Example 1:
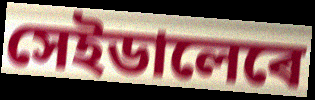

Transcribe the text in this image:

সেইডালেৰে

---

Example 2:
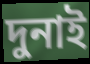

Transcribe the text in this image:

দুনাই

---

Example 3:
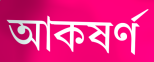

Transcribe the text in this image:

আকষৰ্ণ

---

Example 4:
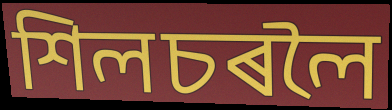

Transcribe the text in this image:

শিলচৰলৈ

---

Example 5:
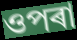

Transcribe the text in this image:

ওপৰা